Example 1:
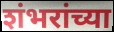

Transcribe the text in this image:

शंभरांच्या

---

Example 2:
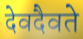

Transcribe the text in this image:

देवदैवते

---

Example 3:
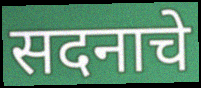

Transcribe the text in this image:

सदनाचे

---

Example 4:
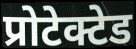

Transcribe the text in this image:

प्रोटेक्टेड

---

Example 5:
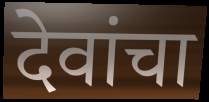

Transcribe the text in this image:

देवांचा